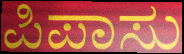
ಪಿಪಾಸು